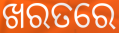
ଖରତରେ